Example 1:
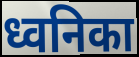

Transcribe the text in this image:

ध्वनिका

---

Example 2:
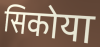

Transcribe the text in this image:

सिकोया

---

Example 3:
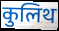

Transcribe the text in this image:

कुलिथ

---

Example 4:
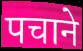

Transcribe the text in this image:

पचाने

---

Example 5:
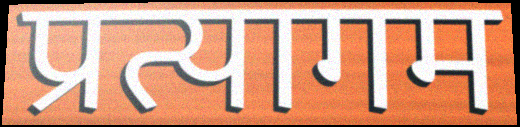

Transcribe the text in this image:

प्रत्यागम